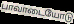
பாவாடையோடு